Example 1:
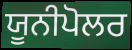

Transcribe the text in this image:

ਯੂਨੀਪੋਲਰ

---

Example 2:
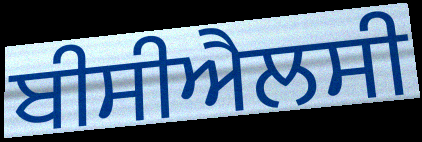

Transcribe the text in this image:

ਬੀਸੀਐਲਸੀ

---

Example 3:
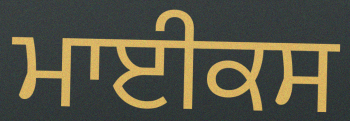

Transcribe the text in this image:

ਮਾਈਕਸ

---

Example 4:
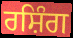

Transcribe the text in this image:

ਰਸ਼ਿੰਗ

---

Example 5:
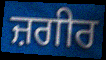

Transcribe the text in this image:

ਜ਼ਗੀਰ